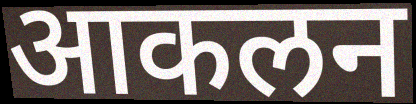
आकलन